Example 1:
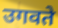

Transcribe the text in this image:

उगवते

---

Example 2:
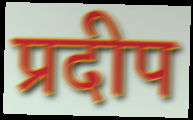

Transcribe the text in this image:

प्रदीप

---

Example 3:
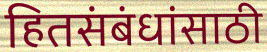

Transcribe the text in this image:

हितसंबंधांसाठी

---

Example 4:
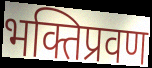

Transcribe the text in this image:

भक्तिप्रवण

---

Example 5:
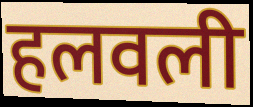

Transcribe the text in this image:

हलवली